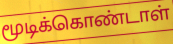
மூடிக்கொண்டாள்